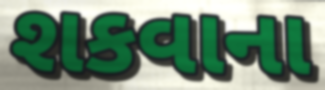
શકવાના